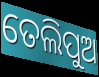
ତେଲିପୁଅ